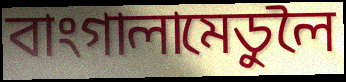
বাংগালামেডুলৈ